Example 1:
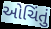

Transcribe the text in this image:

ઓચિંતું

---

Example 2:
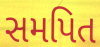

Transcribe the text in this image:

સમપિત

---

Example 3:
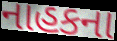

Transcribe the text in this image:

નાહકના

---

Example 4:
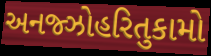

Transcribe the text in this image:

અનજ્ઝોહરિતુકામો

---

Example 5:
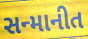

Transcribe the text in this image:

સન્માનીત